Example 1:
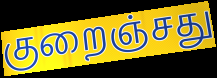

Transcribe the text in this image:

குறைஞ்சது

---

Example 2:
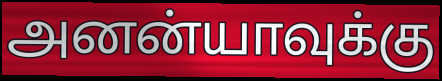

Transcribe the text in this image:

அனன்யாவுக்கு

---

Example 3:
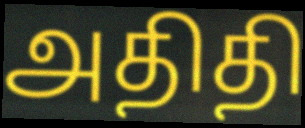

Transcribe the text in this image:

அதிதி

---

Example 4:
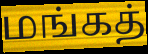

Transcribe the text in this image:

மங்கத்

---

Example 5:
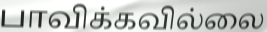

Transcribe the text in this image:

பாவிக்கவில்லை